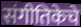
संगीतिकेचे